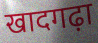
खादगढ़ा